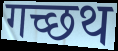
गच्छथ